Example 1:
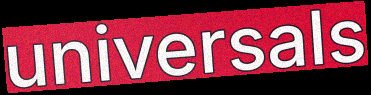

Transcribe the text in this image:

universals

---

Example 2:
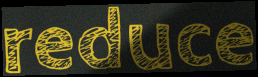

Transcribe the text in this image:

reduce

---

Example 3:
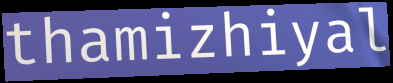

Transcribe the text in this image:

thamizhiyal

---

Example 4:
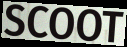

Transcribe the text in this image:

SCOOT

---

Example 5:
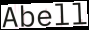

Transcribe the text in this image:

Abell